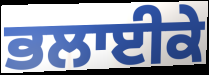
ਭਲਾਈਕੇ